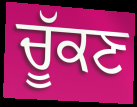
ਚੂੱਕਣ